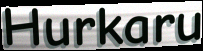
Hurkaru